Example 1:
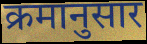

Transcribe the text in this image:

क्रमानुसार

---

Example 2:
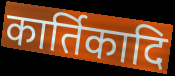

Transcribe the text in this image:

कार्तिकादि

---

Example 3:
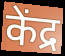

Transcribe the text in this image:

केंद्र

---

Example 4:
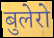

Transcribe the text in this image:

बुलेरो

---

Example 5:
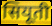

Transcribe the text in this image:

सियूती